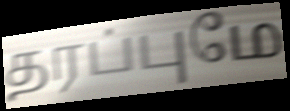
தரப்புமே